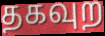
தகவுற